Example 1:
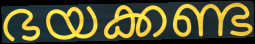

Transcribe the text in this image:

ഭയക്കണ്ട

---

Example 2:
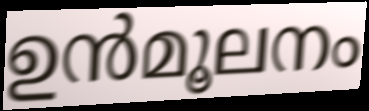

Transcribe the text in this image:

ഉൻമൂലനം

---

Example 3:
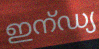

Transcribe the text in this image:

ഇന്ഡ്യ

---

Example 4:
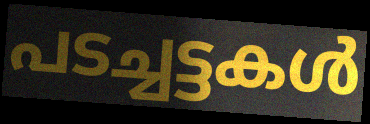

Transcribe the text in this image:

പടച്ചട്ടകൾ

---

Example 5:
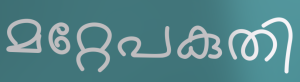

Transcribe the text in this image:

മറ്റേപകുതി